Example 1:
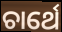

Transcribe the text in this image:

ଚାର୍ଥେ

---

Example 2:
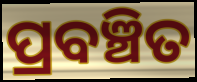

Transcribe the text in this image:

ପ୍ରବଞ୍ଚିତ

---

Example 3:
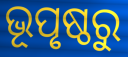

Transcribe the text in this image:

ଭୂପୃଷ୍ଠରୁ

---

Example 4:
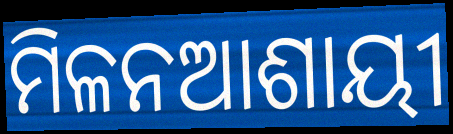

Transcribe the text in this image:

ମିଳନଆଶାୟୀ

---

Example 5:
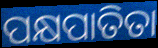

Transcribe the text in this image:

ପକ୍ଷପାତିତା